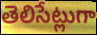
తెలిసేట్లుగా